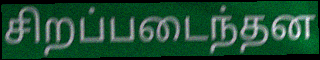
சிறப்படைந்தன